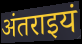
अंतराइयं